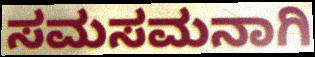
ಸಮಸಮನಾಗಿ